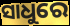
ସାଧୁରେ